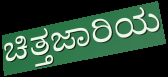
ಚಿತ್ತಜಾರಿಯ